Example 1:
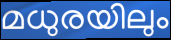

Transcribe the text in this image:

മധുരയിലും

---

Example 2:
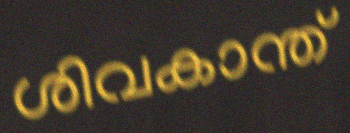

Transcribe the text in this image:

ശിവകാന്ത്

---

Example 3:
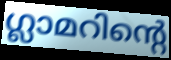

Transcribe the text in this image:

ഗ്ലാമറിന്റെ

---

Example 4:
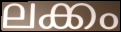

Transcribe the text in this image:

ലക്കം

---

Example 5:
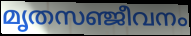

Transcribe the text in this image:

മൃതസഞ്ജീവനം